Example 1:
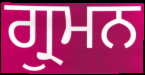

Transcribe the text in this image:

ਗ੍ਰੁਮਨ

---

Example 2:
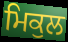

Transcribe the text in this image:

ਮਿਕੁਲ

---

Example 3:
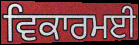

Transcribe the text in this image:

ਵਿਕਾਰਮਈ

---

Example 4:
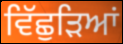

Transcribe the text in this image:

ਵਿੱਛੁੜਿਆਂ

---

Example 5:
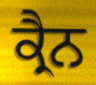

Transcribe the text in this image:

ਕ੍ਰੈਨ